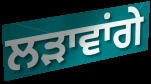
ਲੜਾਵਾਂਗੇ